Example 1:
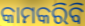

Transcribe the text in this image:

କାମକରିବି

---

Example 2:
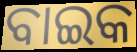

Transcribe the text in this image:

ବାଇକ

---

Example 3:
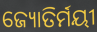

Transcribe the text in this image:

ଜ୍ୟୋତିର୍ମୟୀ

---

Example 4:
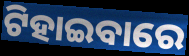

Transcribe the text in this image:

ଟିହାଇବାରେ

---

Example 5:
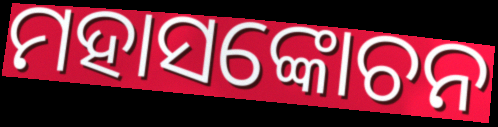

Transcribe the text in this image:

ମହାସଙ୍କୋଚନ